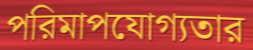
পরিমাপযোগ্যতার